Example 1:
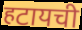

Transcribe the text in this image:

हटायची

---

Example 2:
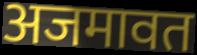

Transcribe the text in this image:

अजमावत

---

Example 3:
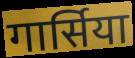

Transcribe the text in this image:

गार्सिया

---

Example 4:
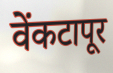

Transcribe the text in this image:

वेंकटापूर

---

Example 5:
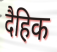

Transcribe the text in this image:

दैहिक